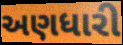
અણધારી